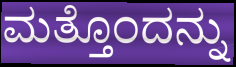
ಮತ್ತೊಂದನ್ನು